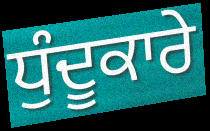
ਧੁੰਦੂਕਾਰੇ